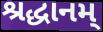
શ્રદ્ધાનમ્